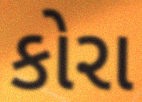
કોરા